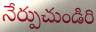
నేర్పుచుండిరి